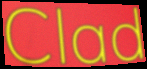
Clad